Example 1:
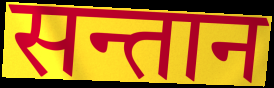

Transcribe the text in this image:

सन्तान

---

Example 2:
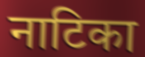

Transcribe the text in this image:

नाटिका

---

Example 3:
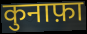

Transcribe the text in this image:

कुनाफ़ा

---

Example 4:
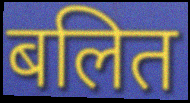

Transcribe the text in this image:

बलित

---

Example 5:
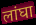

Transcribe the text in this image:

लांघा